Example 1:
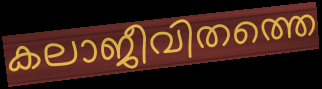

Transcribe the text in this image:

കലാജീവിതത്തെ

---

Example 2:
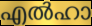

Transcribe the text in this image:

എൽഹാ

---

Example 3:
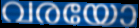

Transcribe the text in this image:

വരയോ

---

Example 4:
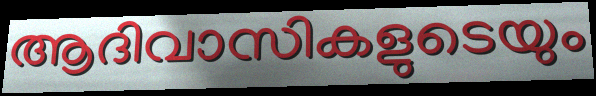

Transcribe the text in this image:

ആദിവാസികളുടെയും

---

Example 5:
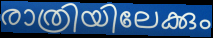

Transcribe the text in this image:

രാത്രിയിലേക്കും